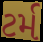
ટર્મ